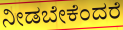
ನೀಡಬೇಕೆಂದರೆ